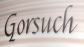
Gorsuch